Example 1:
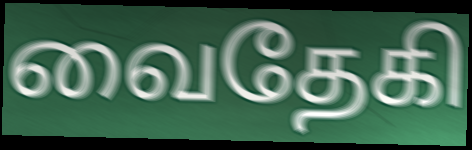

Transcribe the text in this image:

வைதேகி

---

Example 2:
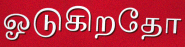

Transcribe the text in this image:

ஓடுகிறதோ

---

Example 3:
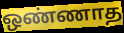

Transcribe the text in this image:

ஒண்ணாத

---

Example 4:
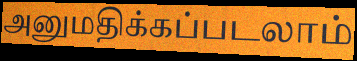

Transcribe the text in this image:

அனுமதிக்கப்படலாம்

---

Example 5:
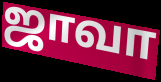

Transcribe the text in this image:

ஜாவா